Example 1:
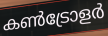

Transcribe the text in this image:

കൺട്രോളർ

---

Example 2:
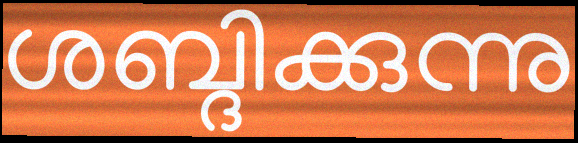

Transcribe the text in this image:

ശബ്ദിക്കുന്നു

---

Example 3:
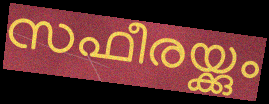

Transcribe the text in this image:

സഫീരയ്ക്കും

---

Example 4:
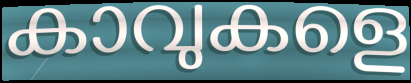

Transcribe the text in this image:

കാവുകളെ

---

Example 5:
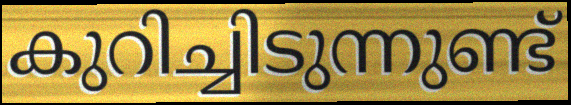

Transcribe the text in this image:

കുറിച്ചിടുന്നുണ്ട്